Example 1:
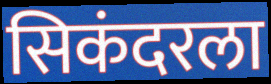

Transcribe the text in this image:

सिकंदरला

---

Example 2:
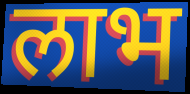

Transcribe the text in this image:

लाभ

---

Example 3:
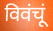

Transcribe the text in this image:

विवंचूं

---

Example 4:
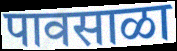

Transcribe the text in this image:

पावसाळा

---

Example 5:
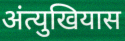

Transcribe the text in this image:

अंत्युखियास